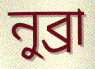
নুব্রা